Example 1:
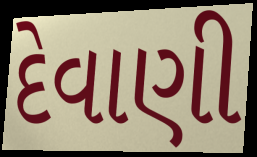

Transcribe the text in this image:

દેવાણી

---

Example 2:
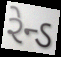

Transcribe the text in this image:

રેન્ડ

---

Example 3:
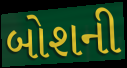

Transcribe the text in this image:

બોશની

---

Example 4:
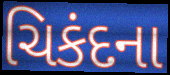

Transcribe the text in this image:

ચિકંદના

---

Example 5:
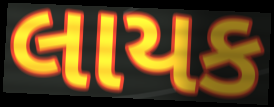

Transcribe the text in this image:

લાયક